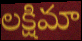
లక్షిమా